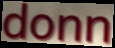
donn